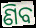
ଣିବ